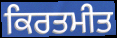
ਕਿਰਤਮੀਤ